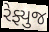
રેફ્યુજ